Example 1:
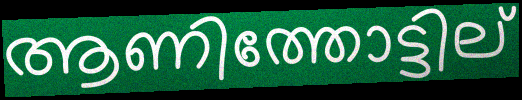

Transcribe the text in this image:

ആണിത്തോട്ടില്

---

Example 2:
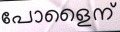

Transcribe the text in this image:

പോളൈന്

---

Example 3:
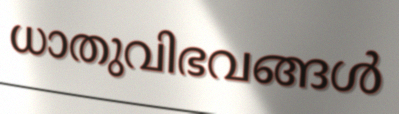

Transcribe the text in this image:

ധാതുവിഭവങ്ങൾ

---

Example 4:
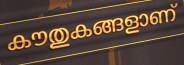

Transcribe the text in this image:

കൗതുകങ്ങളാണ്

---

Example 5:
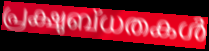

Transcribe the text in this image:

പ്രക്ഷുബ്ധതകൾ